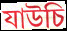
যাউচি